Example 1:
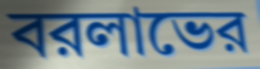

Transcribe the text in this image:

বরলাভের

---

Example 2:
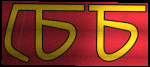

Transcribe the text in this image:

চেচ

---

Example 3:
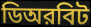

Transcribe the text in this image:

ডিঅরবিট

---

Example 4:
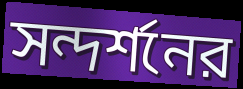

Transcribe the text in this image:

সন্দর্শনের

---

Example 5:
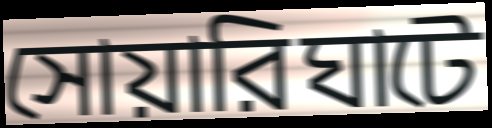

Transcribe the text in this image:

সোয়ারিঘাটে